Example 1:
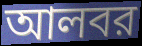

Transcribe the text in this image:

আলবর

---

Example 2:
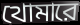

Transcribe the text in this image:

থোমারে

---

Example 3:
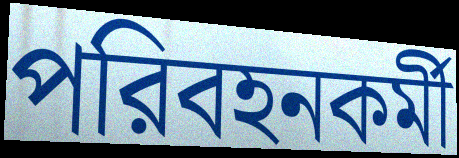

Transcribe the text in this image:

পরিবহনকর্মী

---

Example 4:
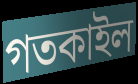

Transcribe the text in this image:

গতকাইল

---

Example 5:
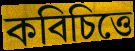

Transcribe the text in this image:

কবিচিত্তে